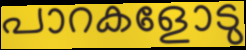
പാറകളോടു